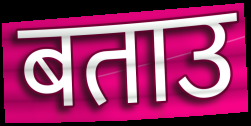
बताउ